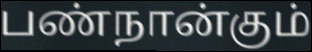
பண்நான்கும்